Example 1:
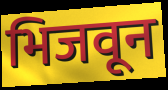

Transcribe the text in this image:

भिजवून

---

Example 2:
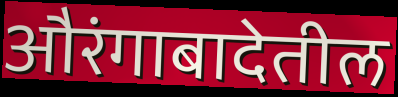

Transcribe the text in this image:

औरंगाबादेतील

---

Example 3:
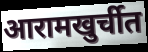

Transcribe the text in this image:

आरामखुर्चीत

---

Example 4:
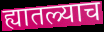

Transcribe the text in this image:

ह्यातल्याच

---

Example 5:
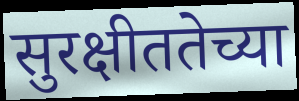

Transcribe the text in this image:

सुरक्षीततेच्या